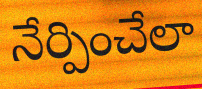
నేర్పించేలా